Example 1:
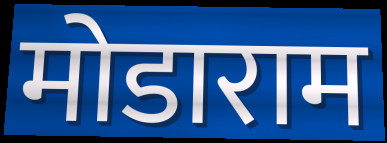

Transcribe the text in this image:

मोडाराम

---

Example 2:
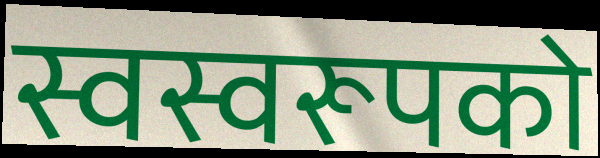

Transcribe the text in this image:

स्वस्वरूपको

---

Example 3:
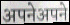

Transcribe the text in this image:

अपनेअपने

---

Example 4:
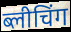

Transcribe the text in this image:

ब्लीचिंग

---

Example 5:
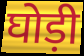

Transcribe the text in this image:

घोड़ी